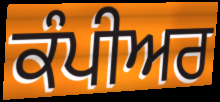
ਕੰਪੀਅਰ